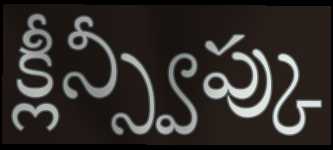
క్లీన్స్వీప్కు